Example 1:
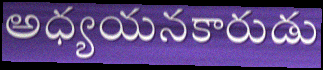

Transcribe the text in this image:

అధ్యయనకారుడు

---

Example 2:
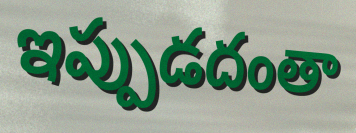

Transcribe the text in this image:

ఇప్పుడదంతా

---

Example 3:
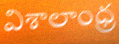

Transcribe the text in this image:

విశాలాంధ్ర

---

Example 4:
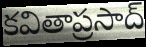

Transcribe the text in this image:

కవితాప్రసాద్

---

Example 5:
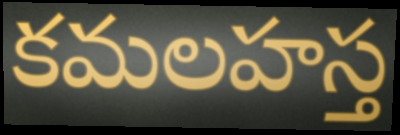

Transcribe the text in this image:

కమలహస్త